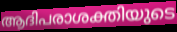
ആദിപരാശക്തിയുടെ